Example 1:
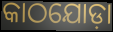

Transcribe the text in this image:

କାଠଯୋଡ଼ା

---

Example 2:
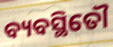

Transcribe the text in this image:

ବ୍ୟବସ୍ଥିତୌ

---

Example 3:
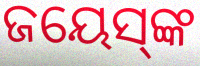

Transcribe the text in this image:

ଜୟେସ୍‌ଙ୍କ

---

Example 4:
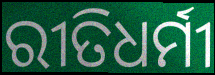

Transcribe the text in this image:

ରୀତିଧର୍ମୀ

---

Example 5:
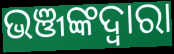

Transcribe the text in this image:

ଭଞ୍ଜଙ୍କଦ୍ୱାରା